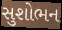
સુશોભન